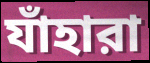
যাঁহারা